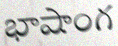
భాషాంగ